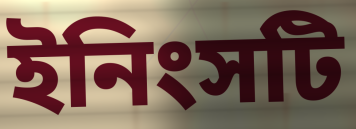
ইনিংসটি